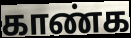
காண்க